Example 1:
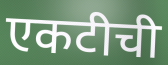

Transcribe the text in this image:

एकटीची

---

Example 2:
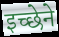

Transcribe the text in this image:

इच्छेने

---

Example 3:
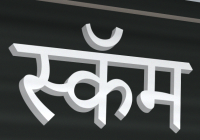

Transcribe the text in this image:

स्कॅम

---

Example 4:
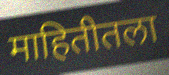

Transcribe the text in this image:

माहितीतला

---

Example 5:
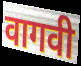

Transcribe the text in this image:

वागवी